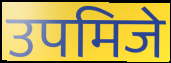
उपमिजे